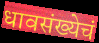
धावसंख्येचं